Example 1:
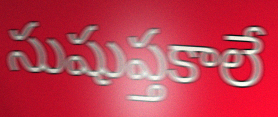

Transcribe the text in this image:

సుషుప్తకాలే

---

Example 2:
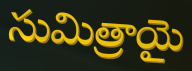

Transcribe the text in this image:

సుమిత్రాయై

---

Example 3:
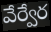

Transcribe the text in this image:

వేర్వేర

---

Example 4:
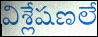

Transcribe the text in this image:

విశ్లేషణలే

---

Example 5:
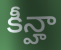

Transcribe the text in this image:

కీన్హా